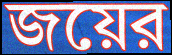
জয়ের